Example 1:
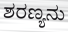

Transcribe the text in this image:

ಶರಣ್ಯನು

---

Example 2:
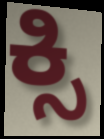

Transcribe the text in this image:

ಕ್ಸಿ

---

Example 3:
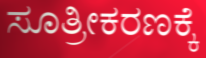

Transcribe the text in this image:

ಸೂತ್ರೀಕರಣಕ್ಕೆ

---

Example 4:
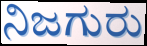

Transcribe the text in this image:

ನಿಜಗುರು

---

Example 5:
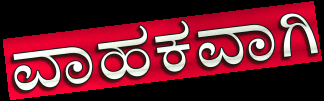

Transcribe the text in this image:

ವಾಹಕವಾಗಿ